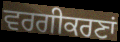
ਵਰਗੀਕਰਣਾਂ